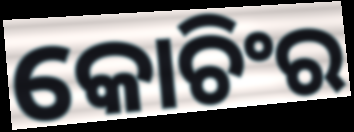
କୋଚିଂର